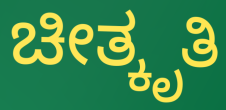
ಚೀತ್ಕೃತಿ